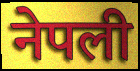
नेपली